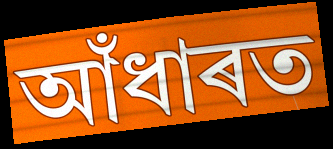
আঁধাৰত